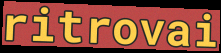
ritrovai